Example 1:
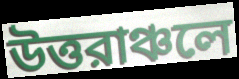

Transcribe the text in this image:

উত্তরাঞ্চলে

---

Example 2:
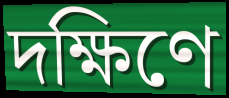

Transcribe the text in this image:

দক্ষিণে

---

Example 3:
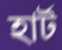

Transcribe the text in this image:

হার্ট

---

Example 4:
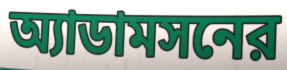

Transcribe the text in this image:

অ্যাডামসনের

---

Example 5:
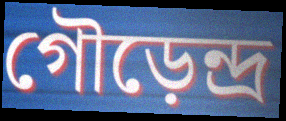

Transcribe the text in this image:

গৌড়েন্দ্র